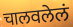
चालवलेलं